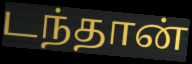
டந்தான்